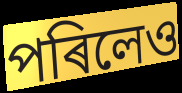
পৰিলেও